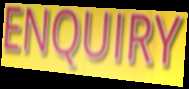
ENQUIRY